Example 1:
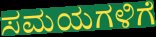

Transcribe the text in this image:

ಸಮಯಗಳಿಗೆ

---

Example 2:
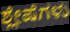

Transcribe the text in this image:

ಶ್ಲೇಷೆಗಳು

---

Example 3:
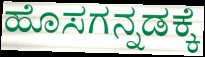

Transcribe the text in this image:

ಹೊಸಗನ್ನಡಕ್ಕೆ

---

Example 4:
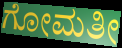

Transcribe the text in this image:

ಗೋಮತೀ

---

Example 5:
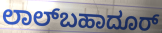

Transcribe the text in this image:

ಲಾಲ್‌ಬಹಾದೂರ್